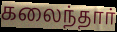
கலைந்தார்